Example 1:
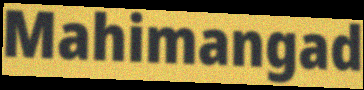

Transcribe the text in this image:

Mahimangad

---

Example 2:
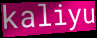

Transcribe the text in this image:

kaliyu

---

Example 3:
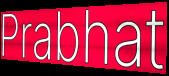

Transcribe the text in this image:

Prabhat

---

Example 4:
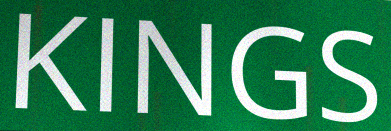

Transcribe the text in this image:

KINGS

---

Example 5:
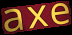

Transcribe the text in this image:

axe